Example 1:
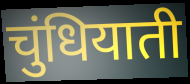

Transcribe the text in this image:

चुंधियाती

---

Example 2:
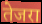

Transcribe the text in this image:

तेजरा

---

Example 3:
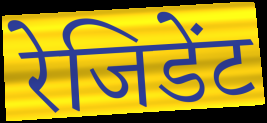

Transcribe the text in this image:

रेजिडेंट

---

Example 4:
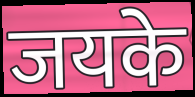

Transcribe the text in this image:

जयके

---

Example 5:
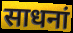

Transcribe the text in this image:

साधनां